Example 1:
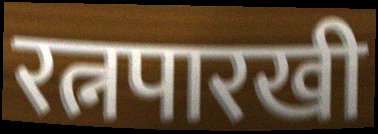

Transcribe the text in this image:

रत्नपारखी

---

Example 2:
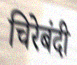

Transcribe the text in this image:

चिरेबंदी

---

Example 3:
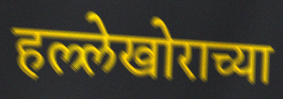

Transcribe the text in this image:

हल्लेखोराच्या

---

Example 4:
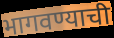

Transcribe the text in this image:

भागवण्याची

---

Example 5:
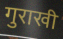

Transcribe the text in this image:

गुराखी